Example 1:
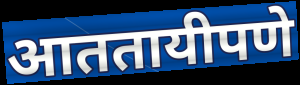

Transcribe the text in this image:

आततायीपणे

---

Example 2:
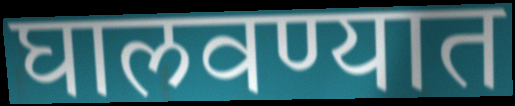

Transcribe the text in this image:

घालवण्यात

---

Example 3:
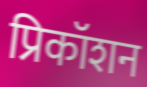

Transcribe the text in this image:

प्रिकॉशन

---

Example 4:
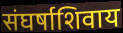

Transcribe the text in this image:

संघर्षाशिवाय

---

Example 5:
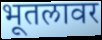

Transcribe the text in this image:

भूतलावर